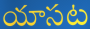
యాసట